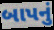
બાપનું